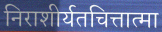
निराशीर्यतचित्तात्मा